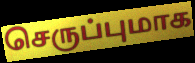
செருப்புமாக